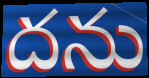
దను